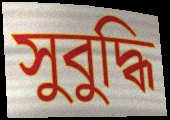
সুবুদ্ধি